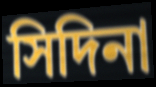
সিদিনা